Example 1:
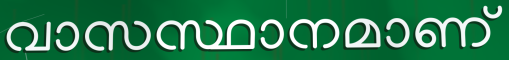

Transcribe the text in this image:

വാസസ്ഥാനമാണ്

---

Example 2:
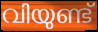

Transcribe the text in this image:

വിയുണ്ട്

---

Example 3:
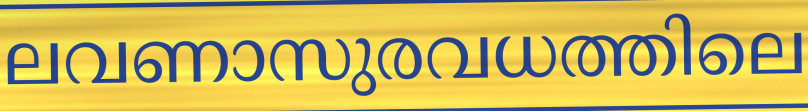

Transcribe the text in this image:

ലവണാസുരവധത്തിലെ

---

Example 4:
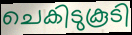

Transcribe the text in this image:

ചെകിടുകൂടി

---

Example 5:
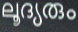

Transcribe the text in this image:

ലൂദ്യരും